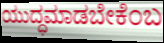
ಯುದ್ಧಮಾಡಬೇಕೆಂಬ